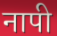
नापी